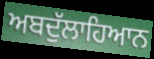
ਅਬਦੁੱਲਾਹਿਆਨ